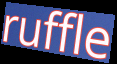
ruffle